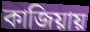
কাজিয়ায়